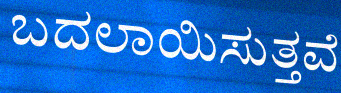
ಬದಲಾಯಿಸುತ್ತವೆ